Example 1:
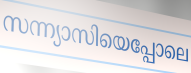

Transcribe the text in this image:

സന്ന്യാസിയെപ്പോലെ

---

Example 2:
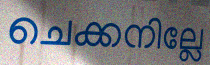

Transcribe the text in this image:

ചെക്കനില്ലേ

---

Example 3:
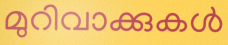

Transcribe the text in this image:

മുറിവാക്കുകൾ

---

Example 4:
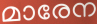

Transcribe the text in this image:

മാരേന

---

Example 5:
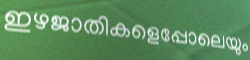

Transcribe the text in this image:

ഇഴജാതികളെപ്പോലെയും